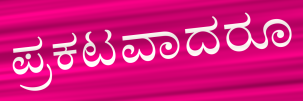
ಪ್ರಕಟವಾದರೂ